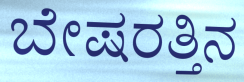
ಬೇಷರತ್ತಿನ